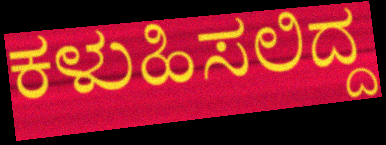
ಕಳುಹಿಸಲಿದ್ದ